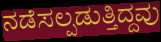
ನಡೆಸಲ್ಪಡುತ್ತಿದ್ದವು